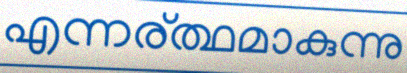
എന്നര്ത്ഥമാകുന്നു